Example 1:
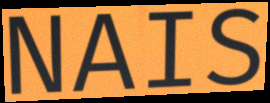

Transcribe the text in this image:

NAIS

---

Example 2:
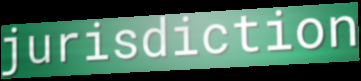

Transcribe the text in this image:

jurisdiction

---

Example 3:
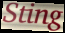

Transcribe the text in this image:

Sting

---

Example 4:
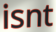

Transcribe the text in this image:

isnt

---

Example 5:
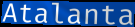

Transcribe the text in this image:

Atalanta